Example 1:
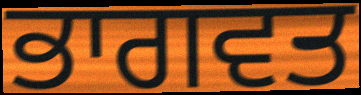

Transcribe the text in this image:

ਭਾਗਵਤ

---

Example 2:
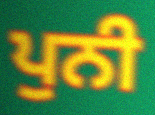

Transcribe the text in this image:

ਪੁਨੀ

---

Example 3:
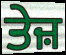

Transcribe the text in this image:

ਤੇਜ਼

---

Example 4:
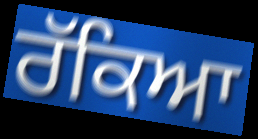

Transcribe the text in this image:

ਰੱਕਿਆ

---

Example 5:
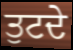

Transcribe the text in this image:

ਤੁਟਦੇ